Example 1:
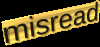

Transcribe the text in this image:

misread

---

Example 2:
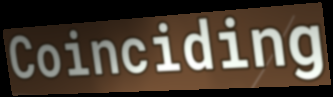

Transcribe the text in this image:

Coinciding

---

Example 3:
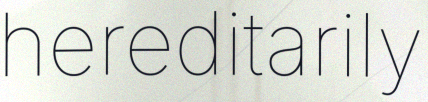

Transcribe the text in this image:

hereditarily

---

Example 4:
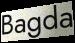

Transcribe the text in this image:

Bagda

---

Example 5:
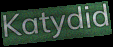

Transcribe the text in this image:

Katydid